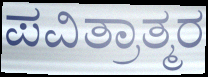
ಪವಿತ್ರಾತ್ಮರ